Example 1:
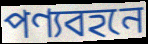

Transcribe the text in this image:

পণ্যবহনে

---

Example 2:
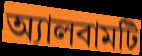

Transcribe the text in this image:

অ্যালবামটি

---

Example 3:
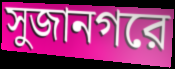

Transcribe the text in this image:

সুজানগরে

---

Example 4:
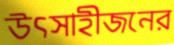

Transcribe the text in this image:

উৎসাহীজনের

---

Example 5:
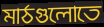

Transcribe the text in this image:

মাঠগুলোতে